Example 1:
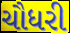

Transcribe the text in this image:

ચૌધરી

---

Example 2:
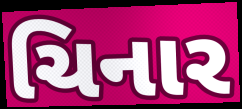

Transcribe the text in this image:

ચિનાર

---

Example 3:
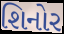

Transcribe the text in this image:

શિનોર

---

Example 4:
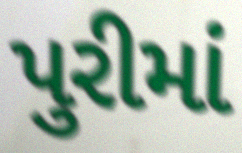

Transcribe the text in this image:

પુરીમાં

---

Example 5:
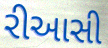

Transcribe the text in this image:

રીઆસી